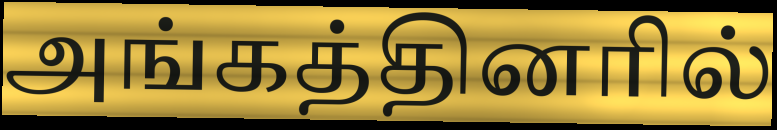
அங்கத்தினரில்